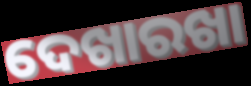
ଦେଖାରଖା